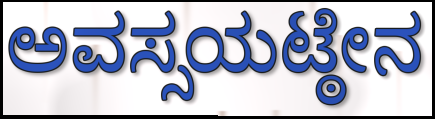
ಅವಸ್ಸಯಟ್ಠೇನ